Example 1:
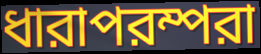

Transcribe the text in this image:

ধারাপরম্পরা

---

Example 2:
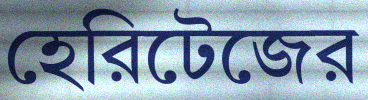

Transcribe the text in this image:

হেরিটেজের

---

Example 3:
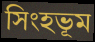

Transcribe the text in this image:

সিংহভূম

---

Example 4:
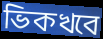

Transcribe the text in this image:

ভিকখবে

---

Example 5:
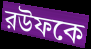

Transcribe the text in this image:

রউফকে